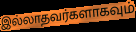
இல்லாதவர்களாகவும்